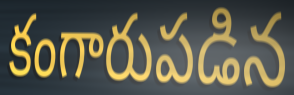
కంగారుపడిన